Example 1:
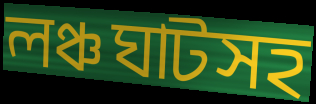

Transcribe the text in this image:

লঞ্চঘাটসহ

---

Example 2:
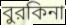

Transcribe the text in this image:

বুরকিনা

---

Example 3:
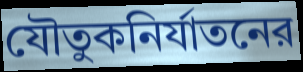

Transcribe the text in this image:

যৌতুকনির্যাতনের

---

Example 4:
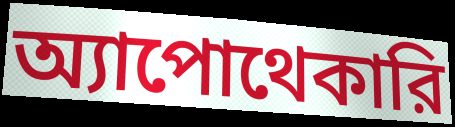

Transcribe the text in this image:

অ্যাপোথেকারি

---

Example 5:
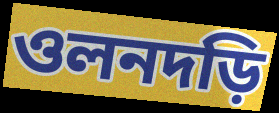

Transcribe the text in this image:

ওলনদড়ি